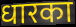
धारका